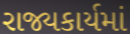
રાજ્યકાર્યમાં